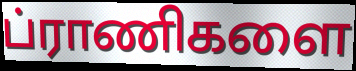
ப்ராணிகளை